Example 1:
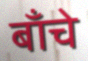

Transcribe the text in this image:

बाँचे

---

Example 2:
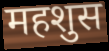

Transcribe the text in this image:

महशुस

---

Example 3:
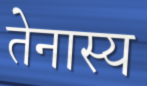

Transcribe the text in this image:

तेनास्य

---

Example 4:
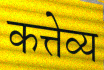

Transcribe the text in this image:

कत्तेव्य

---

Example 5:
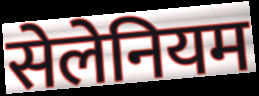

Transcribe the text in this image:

सेलेनियम